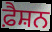
ਫ਼ੈਸ਼ਨ